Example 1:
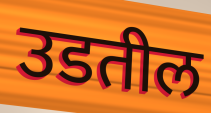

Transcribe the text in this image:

उडतील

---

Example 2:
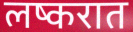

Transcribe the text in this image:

लष्करात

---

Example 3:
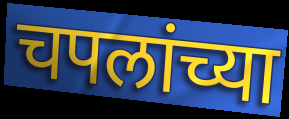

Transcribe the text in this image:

चपलांच्या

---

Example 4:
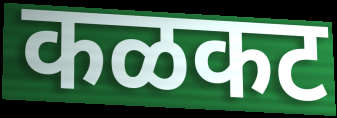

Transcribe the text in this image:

कळकट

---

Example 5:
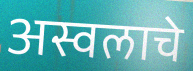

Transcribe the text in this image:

अस्वलाचे